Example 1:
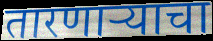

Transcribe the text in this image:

तारणाऱ्याचा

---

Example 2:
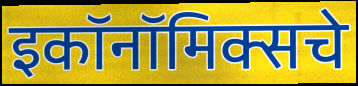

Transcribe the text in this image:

इकॉनॉमिक्सचे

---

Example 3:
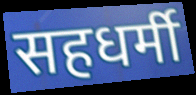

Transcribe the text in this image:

सहधर्मी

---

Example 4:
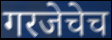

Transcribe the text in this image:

गरजेचेच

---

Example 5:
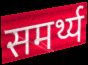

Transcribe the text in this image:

समर्थ्य